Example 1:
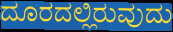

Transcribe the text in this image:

ದೂರದಲ್ಲಿರುವುದು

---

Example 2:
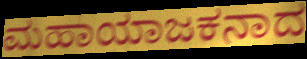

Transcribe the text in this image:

ಮಹಾಯಾಜಕನಾದ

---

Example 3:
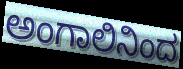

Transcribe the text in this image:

ಅಂಗಾಲಿನಿಂದ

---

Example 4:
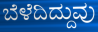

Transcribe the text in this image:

ಬೆಳೆದಿದ್ದುವು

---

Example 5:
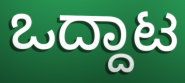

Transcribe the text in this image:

ಒದ್ದಾಟ